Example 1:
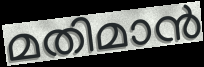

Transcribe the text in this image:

മതിമാൻ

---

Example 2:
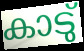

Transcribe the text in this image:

കാടു്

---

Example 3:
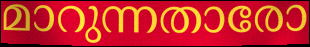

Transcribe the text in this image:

മാറുന്നതാരോ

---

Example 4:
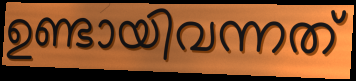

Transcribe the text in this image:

ഉണ്ടായിവന്നത്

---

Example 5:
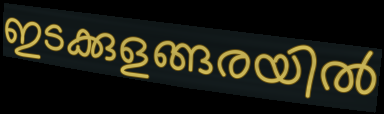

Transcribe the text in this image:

ഇടക്കുളങ്ങരയിൽ